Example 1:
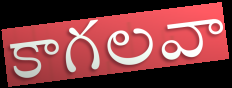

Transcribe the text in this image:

కాగలవా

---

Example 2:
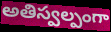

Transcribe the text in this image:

అతిస్వల్పంగా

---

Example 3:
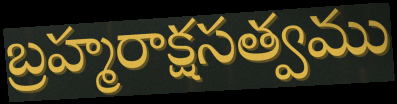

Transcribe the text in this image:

బ్రహ్మరాక్షసత్వము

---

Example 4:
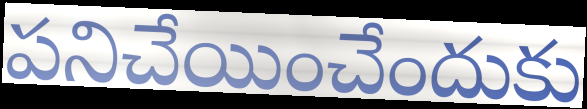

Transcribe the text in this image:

పనిచేయించేందుకు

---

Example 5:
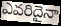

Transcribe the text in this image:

ఎవరిదైనా